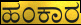
ಹಂಕಾರ